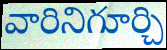
వారినిగూర్చి